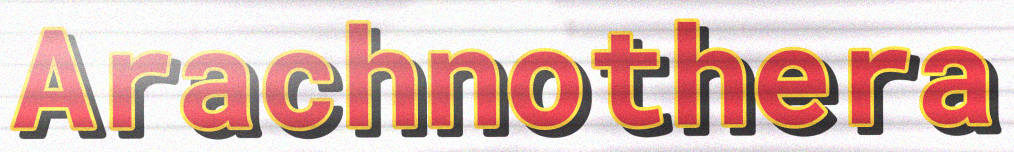
Arachnothera